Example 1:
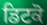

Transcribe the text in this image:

ਡਿਟਕੋ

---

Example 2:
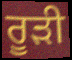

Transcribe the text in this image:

ਰੂੜੀ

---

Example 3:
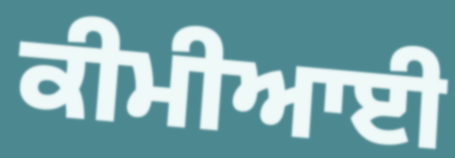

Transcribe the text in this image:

ਕੀਮੀਆਈ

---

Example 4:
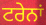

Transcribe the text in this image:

ਟਰੇਨਾਂ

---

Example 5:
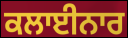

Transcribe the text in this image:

ਕਲਾਈਨਾਰ